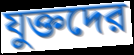
যুক্তদের